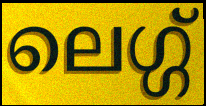
ലെഗ്ഗ്